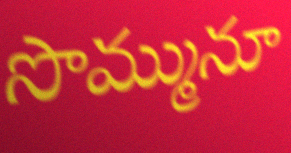
సొమ్మునూ